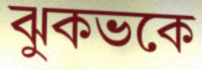
ঝুকভকে